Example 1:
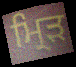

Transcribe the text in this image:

ਮ੍ਰਿੜ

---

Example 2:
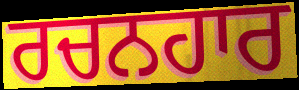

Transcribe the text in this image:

ਰਚਨਹਾਰ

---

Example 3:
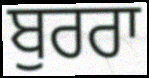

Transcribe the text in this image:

ਬੁਰਰਾ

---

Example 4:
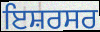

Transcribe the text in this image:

ਇਸ਼ਰਸਰ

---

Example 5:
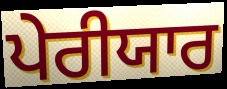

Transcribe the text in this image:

ਪੇਰੀਯਾਰ